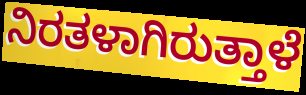
ನಿರತಳಾಗಿರುತ್ತಾಳೆ